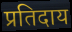
प्रतिदाय